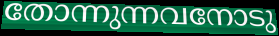
തോന്നുന്നവനോടു